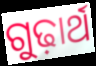
ଗୁଢ଼ାର୍ଥ